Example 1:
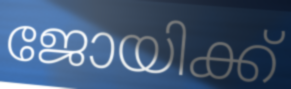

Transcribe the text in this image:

ജോയിക്ക്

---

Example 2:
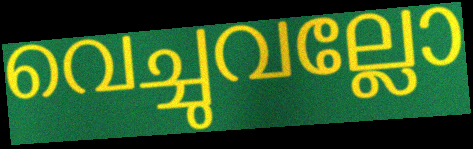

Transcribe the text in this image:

വെച്ചുവല്ലോ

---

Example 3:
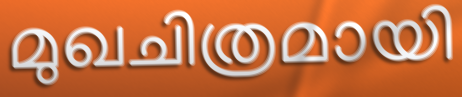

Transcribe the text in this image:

മുഖചിത്രമായി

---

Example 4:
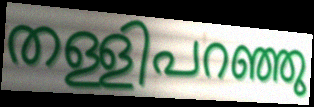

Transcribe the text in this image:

തള്ളിപറഞ്ഞു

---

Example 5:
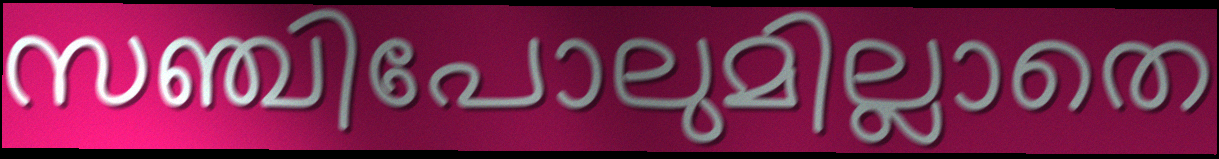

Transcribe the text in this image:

സഞ്ചിപോലുമില്ലാതെ